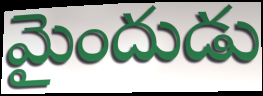
మైందుడు